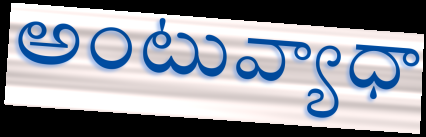
అంటువ్యాధా